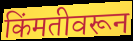
किंमतीवरून